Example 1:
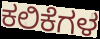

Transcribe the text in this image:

ಕಲಿಕೆಗಳ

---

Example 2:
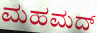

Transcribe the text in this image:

ಮಹಮದ್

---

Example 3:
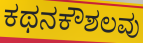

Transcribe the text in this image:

ಕಥನಕೌಶಲವು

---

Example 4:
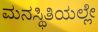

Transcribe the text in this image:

ಮನಸ್ಥಿತಿಯಲ್ಲೇ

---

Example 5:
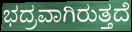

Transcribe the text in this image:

ಭದ್ರವಾಗಿರುತ್ತದೆ